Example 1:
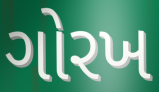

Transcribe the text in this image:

ગોરખ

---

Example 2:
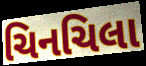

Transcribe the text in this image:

ચિનચિલા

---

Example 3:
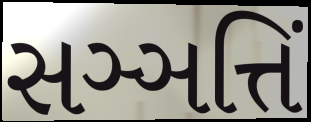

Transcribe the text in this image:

સઞ્ઞત્તિં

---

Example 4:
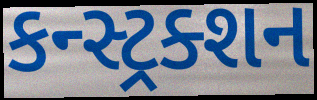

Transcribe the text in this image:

કન્સ્ટ્રક્શન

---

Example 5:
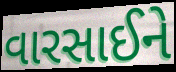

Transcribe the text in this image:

વારસાઈને